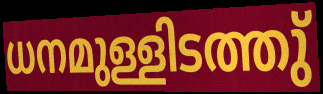
ധനമുള്ളിടത്തു്